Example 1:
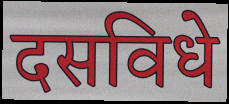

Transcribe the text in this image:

दसविधे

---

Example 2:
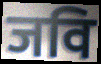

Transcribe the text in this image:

जवि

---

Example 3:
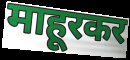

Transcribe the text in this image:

माहूरकर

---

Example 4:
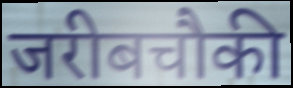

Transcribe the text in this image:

जरीबचौकी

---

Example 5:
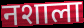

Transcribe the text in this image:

नशाला